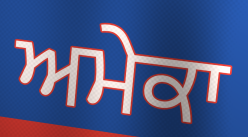
ਅਮੇਕਾ